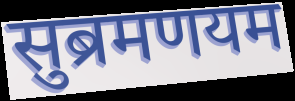
सुब्रमणयम